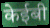
केईबी